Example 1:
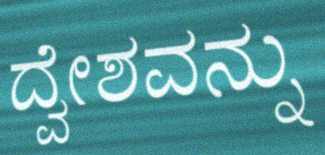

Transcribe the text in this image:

ದ್ವೇಶವನ್ನು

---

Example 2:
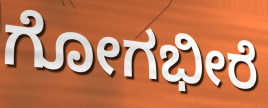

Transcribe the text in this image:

ಗೋಗಭೀರೆ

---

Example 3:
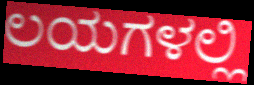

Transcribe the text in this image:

ಲಯಗಳಲ್ಲಿ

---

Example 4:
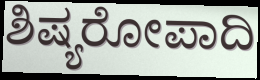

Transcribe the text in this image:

ಶಿಷ್ಯರೋಪಾದಿ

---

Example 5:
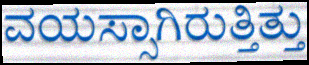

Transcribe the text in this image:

ವಯಸ್ಸಾಗಿರುತ್ತಿತ್ತು